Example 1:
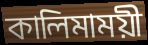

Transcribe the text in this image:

কালিমাময়ী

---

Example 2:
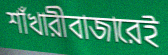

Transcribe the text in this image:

শাঁখারীবাজারেই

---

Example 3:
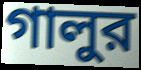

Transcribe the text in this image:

গালুর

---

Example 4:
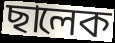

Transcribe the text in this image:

ছালেক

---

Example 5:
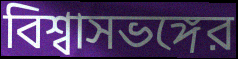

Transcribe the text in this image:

বিশ্বাসভঙ্গের